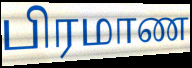
பிரமாண